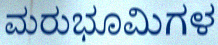
ಮರುಭೂಮಿಗಳ